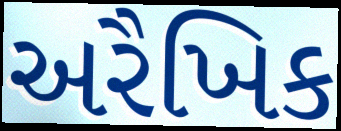
અરૈખિક